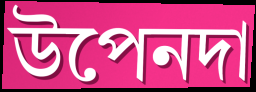
উপেনদা